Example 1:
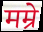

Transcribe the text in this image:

मम्रे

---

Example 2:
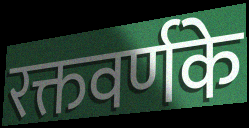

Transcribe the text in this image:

रक्तवर्णके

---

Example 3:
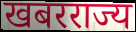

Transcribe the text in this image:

खबरराज्य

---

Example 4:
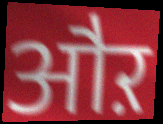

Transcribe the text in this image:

औऱ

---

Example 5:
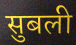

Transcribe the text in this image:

सुबली